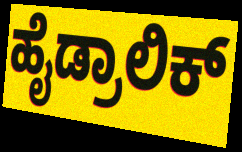
ಹೈಡ್ರಾಲಿಕ್